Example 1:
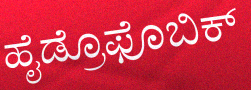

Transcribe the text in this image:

ಹೈಡ್ರೊಫೊಬಿಕ್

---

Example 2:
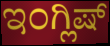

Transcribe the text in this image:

ಇಂಗ್ಲಿಷ್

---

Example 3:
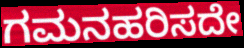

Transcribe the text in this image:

ಗಮನಹರಿಸದೇ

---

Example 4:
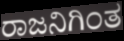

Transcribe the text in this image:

ರಾಜನಿಗಿಂತ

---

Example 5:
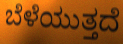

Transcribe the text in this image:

ಬೆಳೆಯುತ್ತದೆ